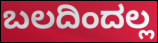
ಬಲದಿಂದಲ್ಲ